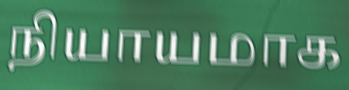
நியாயமாக